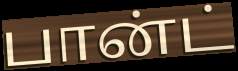
பான்ட்